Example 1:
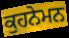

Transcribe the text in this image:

ਕੁਹਨੇਮਨ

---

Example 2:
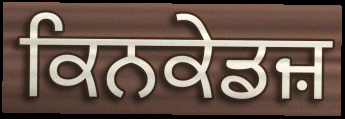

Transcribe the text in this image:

ਕਿਨਕੇਡਜ਼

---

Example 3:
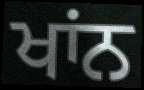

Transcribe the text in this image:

ਖਾਂਨ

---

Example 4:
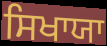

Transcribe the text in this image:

ਸਿਖਾਯਾ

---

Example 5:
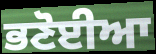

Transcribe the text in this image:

ਭਣੋਈਆ